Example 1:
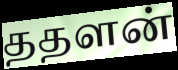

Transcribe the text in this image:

ததளன்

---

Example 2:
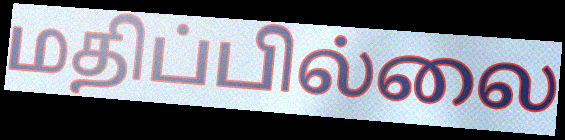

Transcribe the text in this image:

மதிப்பில்லை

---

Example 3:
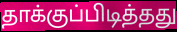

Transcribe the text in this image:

தாக்குப்பிடித்தது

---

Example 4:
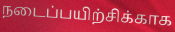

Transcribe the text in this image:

நடைப்பயிற்சிக்காக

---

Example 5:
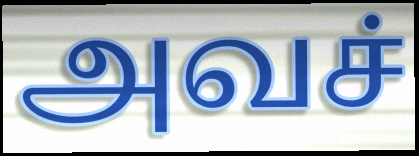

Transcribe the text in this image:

அவச்